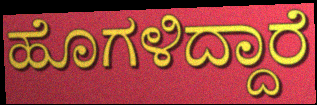
ಹೊಗಳಿದ್ದಾರೆ